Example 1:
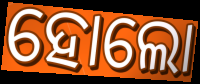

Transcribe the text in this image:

ହୋଲୋ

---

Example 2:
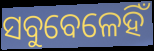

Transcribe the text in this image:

ସବୁବେଳେହିଁ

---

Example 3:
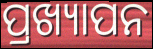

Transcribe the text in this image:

ପ୍ରଖ୍ୟାପନ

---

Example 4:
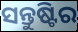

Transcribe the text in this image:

ସନ୍ତୁଷ୍ଟିର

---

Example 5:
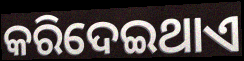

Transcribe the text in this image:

କରିଦେଇଥାଏ